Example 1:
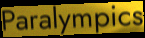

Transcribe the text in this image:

Paralympics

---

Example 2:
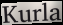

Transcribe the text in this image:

Kurla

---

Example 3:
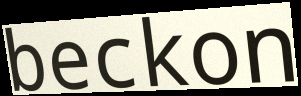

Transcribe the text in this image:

beckon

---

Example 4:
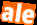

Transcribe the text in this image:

ale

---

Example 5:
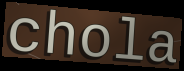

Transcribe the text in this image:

chola